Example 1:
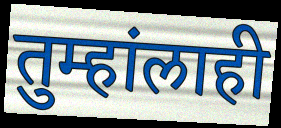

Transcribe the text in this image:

तुम्हांलाही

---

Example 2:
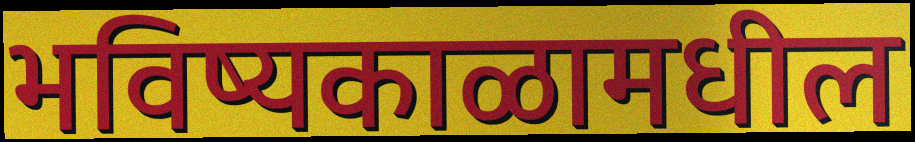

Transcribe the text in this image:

भविष्यकाळामधील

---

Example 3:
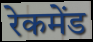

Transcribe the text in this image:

रेकमेंड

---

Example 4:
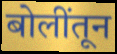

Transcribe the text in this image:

बोलींतून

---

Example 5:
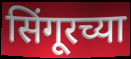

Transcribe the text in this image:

सिंगूरच्या